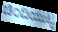
ಚಿಂದಿಯುಟ್ಟ